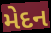
મેદન